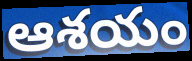
ఆశయం